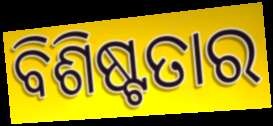
ବିଶିଷ୍ଟତାର